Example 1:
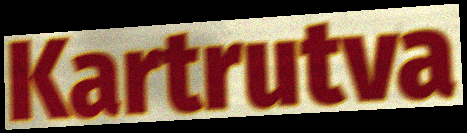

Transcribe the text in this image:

Kartrutva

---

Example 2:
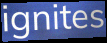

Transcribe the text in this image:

ignites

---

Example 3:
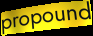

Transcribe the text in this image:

propound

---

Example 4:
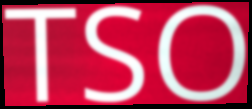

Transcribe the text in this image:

TSO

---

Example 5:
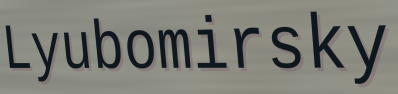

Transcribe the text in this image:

Lyubomirsky